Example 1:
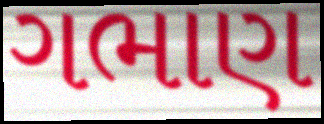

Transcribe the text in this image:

ગભાણ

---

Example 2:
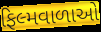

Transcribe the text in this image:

ફિલ્મવાળાઓ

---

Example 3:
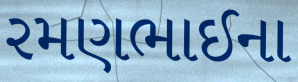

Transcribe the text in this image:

રમણભાઈના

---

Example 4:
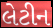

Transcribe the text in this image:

લેટીન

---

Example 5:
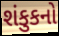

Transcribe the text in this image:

શંકુકનો